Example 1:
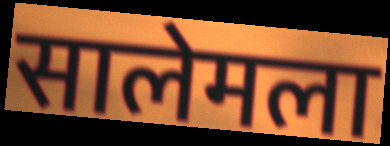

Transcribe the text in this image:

सालेमला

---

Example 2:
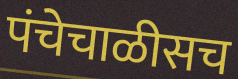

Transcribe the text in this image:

पंचेचाळीसच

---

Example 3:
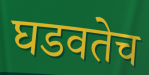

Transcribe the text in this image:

घडवतेच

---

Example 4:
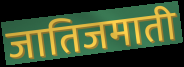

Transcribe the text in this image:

जातिजमाती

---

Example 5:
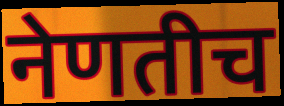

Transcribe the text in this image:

नेणतीच